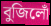
বুজিলোঁ